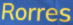
Rorres